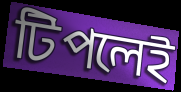
টিপলেই